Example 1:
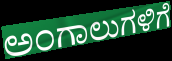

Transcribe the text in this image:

ಅಂಗಾಲುಗಳಿಗೆ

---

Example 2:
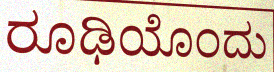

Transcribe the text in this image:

ರೂಢಿಯೊಂದು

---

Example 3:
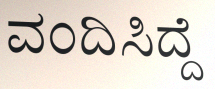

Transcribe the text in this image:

ವಂದಿಸಿದ್ದೆ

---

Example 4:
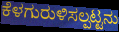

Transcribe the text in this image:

ಕೆಳಗುರುಳಿಸಲ್ಪಟ್ಟನು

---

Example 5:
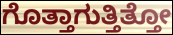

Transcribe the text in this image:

ಗೊತ್ತಾಗುತ್ತಿತ್ತೋ